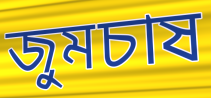
জুমচাষ